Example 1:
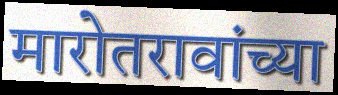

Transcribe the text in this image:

मारोतरावांच्या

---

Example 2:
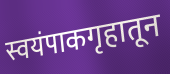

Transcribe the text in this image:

स्वयंपाकगृहातून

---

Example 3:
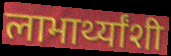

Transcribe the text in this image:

लाभार्थ्यांशी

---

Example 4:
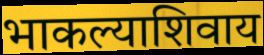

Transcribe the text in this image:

भाकल्याशिवाय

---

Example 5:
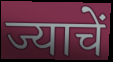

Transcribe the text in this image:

ज्याचें